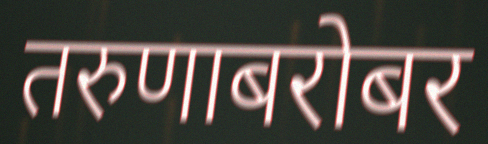
तरुणाबरोबर